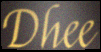
Dhee